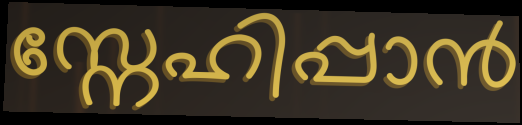
സ്നേഹിപ്പാൻ